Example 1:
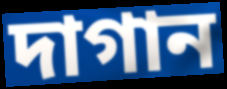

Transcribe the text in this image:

দাগান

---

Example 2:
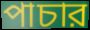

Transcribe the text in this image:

পাচার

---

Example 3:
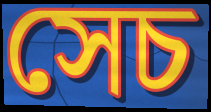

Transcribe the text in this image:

সেচ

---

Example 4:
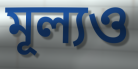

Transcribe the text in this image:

মূল্যও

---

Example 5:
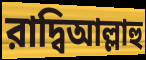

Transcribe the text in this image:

রাদ্বিআল্লাহু